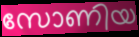
സോണിയ